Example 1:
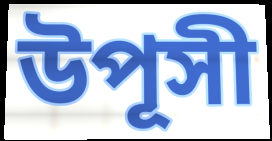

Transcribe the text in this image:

উপূসী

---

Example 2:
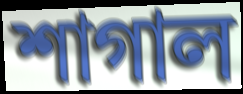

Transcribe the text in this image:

শাগাল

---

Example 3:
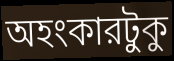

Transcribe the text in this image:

অহংকারটুকু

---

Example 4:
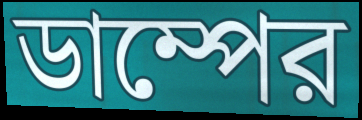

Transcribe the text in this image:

ডাম্পের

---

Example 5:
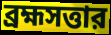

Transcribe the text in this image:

ব্রহ্মসত্তার